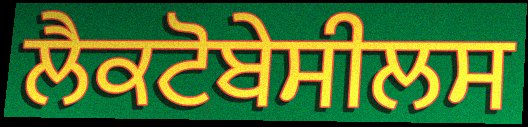
ਲੈਕਟੋਬੇਸੀਲਸ